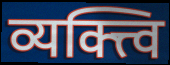
व्यक्त्त्वि